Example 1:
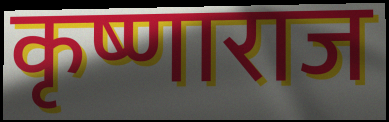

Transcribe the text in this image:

कृष्णाराज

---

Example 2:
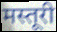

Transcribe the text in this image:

मस्तूरी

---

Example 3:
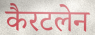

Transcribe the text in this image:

कैरटलेन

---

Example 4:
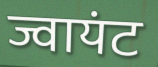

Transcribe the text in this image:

ज्वायंट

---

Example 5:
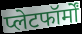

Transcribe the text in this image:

प्लेटफॉर्मों